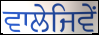
ਵਾਲੇਜਿਵੇਂ